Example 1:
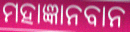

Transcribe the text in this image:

ମହାଜ୍ଞାନବାନ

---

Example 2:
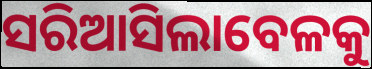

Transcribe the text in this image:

ସରିଆସିଲାବେଳକୁ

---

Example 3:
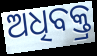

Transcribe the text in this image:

ଅଧିବକ୍ତ୍ର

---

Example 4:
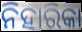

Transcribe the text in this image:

ନିହାରିକା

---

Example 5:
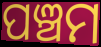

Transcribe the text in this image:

ପଞ୍ଚମ